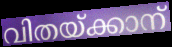
വിതയ്ക്കാന്